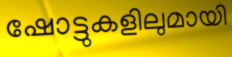
ഷോട്ടുകളിലുമായി